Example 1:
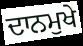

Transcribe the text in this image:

ਦਾਨਮੁਖੇ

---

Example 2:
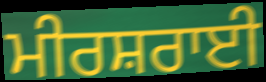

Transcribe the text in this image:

ਮੀਰਸ਼ਰਾਈ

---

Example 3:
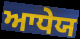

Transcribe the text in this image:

ਆਧੇਯ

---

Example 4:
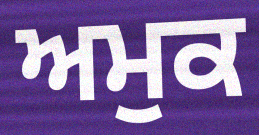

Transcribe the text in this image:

ਅਮੁਕ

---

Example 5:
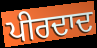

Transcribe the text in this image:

ਪੀਰਦਾਦ